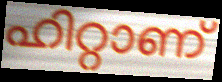
ഹിറ്റാണ്